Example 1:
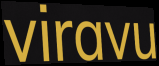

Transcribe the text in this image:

viravu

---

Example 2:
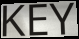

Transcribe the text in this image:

KEY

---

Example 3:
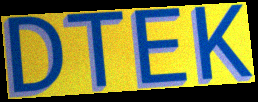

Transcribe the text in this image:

DTEK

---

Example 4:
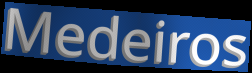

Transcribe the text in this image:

Medeiros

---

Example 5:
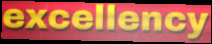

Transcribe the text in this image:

excellency